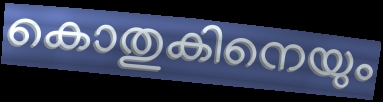
കൊതുകിനെയും